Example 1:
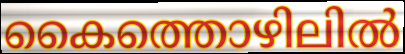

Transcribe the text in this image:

കൈത്തൊഴിലിൽ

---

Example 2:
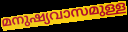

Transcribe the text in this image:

മനുഷ്യവാസമുള്ള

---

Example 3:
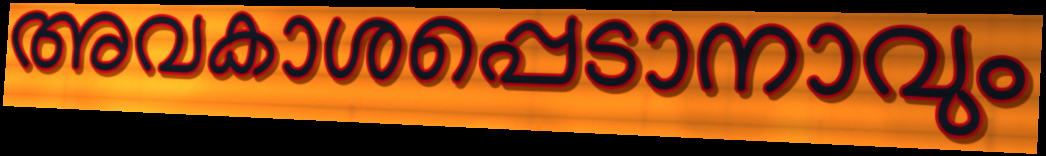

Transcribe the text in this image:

അവകാശപ്പെടാനാവും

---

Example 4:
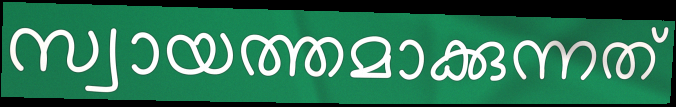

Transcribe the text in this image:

സ്വായത്തമാക്കുന്നത്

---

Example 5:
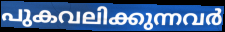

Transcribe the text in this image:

പുകവലിക്കുന്നവർ